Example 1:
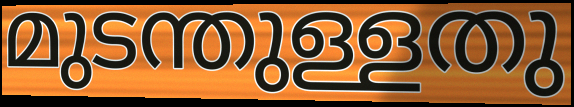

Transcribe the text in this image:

മുടന്തുള്ളതു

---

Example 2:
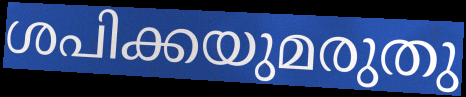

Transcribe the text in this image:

ശപിക്കയുമരുതു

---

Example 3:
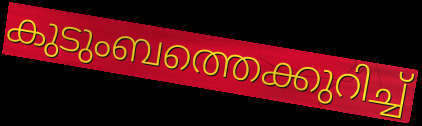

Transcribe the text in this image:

കുടുംബത്തെക്കുറിച്ച്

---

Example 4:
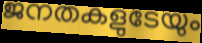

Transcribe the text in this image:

ജനതകളുടേയും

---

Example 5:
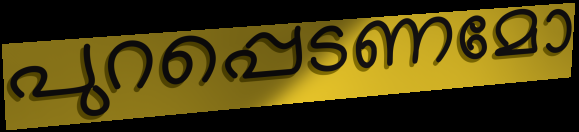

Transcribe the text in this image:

പുറപ്പെടണമോ